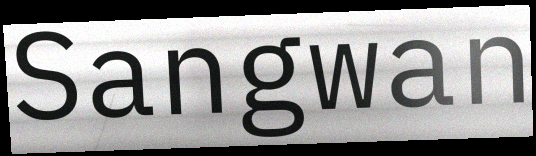
Sangwan